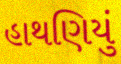
હાથણિયું